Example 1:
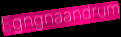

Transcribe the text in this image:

Egngnaandrum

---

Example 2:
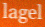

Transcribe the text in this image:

lagel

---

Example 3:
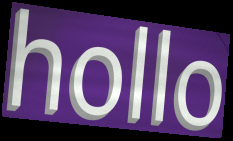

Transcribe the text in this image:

hollo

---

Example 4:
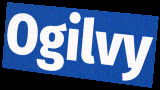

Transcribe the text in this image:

Ogilvy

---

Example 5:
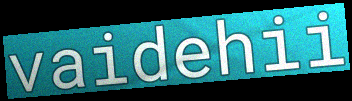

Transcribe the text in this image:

vaidehii